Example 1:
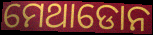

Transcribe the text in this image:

ମେଥାଡୋନ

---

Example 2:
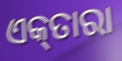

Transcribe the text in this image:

ଏକ୍‌ତାରା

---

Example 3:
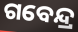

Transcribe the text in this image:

ଗବେନ୍ଦ୍ର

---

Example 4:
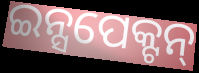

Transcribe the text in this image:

ଇନ୍ସପେକ୍ଟନ୍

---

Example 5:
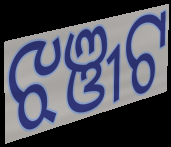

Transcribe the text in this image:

ଝଞ୍ଜଟ